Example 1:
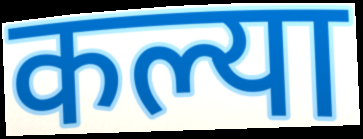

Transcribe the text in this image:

कल्या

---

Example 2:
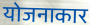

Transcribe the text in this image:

योजनाकार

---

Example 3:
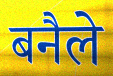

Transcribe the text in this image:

बनैले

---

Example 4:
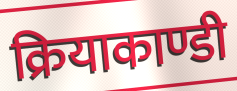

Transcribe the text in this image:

क्रियाकाण्डी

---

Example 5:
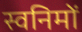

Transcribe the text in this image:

स्वनिमों